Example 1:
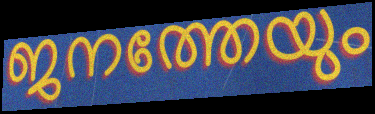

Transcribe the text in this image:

ജനത്തേയും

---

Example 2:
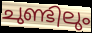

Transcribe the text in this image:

ചുണ്ടിലും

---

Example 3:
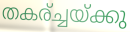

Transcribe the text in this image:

തകര്ച്ചയ്ക്കു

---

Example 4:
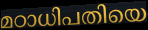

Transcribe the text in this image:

മഠാധിപതിയെ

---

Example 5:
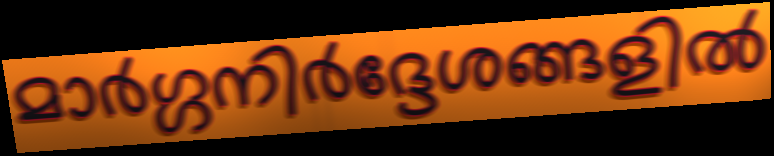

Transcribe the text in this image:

മാർഗ്ഗനിർദ്ദേശങ്ങളിൽ